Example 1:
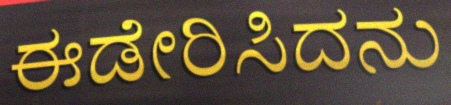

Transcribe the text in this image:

ಈಡೇರಿಸಿದನು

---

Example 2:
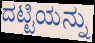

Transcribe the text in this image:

ದಟ್ಟಿಯನ್ನು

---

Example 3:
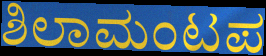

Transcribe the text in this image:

ಶಿಲಾಮಂಟಪ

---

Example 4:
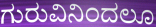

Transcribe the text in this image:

ಗುರುವಿನಿಂದಲೂ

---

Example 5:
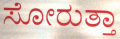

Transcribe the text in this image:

ಸೋರುತ್ತಾ